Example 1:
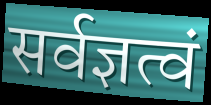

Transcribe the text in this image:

सर्वज्ञत्वं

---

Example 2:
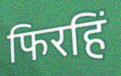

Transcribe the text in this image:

फिरहिं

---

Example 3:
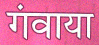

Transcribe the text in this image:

गंवाया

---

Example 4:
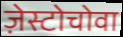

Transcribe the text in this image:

ज़ेस्टोचोवा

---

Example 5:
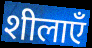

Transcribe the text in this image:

शीलाएँ